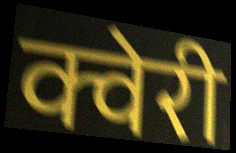
क्वेरी